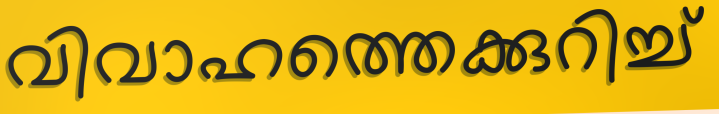
വിവാഹത്തെക്കുറിച്ച്